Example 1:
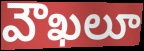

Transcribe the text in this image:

వౌఖలూ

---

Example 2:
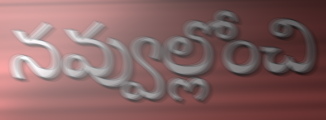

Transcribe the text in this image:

నవ్వుల్లోంచి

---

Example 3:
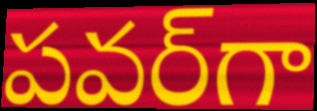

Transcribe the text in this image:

పవర్‌గా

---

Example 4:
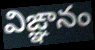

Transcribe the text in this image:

విఙ్ఞానం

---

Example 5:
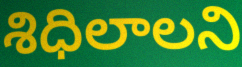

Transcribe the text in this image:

శిధిలాలని